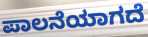
ಪಾಲನೆಯಾಗದೆ